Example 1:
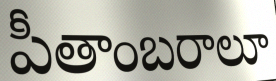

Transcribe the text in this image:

పీతాంబరాలూ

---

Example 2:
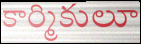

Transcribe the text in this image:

కార్మికులూ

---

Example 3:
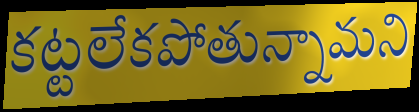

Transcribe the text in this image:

కట్టలేకపోతున్నామని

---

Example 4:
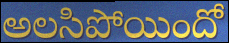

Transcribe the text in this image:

అలసిపోయిందో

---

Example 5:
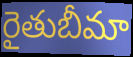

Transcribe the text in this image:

రైతుబీమా